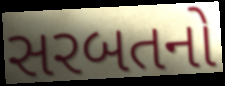
સરબતનો